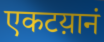
एकटय़ानं